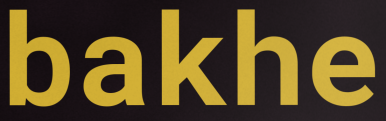
bakhe